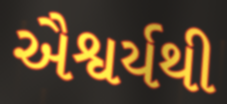
ઐશ્વર્યથી